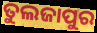
ତୁଲଜାପୁର